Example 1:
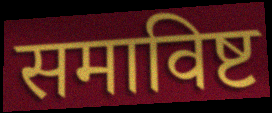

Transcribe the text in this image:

समाविष्ट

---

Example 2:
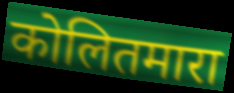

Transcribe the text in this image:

कोलितमारा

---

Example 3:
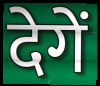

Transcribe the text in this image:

देगें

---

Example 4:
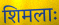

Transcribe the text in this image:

शिमलाः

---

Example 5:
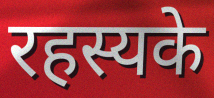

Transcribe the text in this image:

रहस्यके